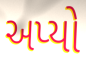
અપ્યો